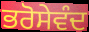
ਭਰੋਸੇਵੰਦ